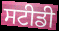
ਸਟੀਡੀ